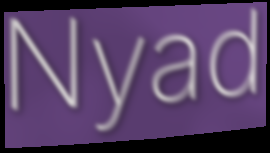
Nyad